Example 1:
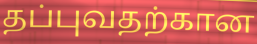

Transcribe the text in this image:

தப்புவதற்கான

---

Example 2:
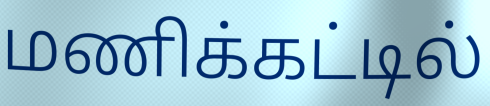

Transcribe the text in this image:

மணிக்கட்டில்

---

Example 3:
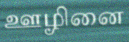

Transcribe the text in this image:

ஊழினை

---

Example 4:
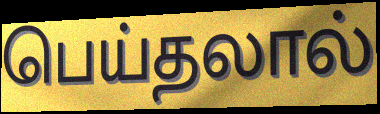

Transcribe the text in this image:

பெய்தலால்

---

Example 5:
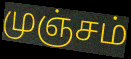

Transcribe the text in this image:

முஞ்சம்